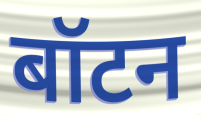
बॉटन